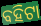
ବହିଟା